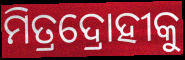
ମିତ୍ରଦ୍ରୋହୀକୁ